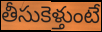
తీసుకెళ్తుంటే